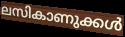
ലസികാണുക്കൾ